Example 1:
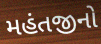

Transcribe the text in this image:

મહંતજીનો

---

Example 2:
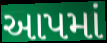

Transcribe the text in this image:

આપમાં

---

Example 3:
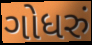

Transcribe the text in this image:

ગોધરું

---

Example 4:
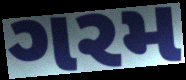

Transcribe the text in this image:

ગરમ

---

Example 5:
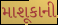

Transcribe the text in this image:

માશૂકાની